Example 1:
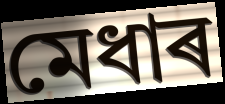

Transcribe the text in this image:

মেধাৰ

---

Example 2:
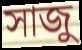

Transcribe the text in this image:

সাজু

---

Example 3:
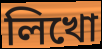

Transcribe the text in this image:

লিখো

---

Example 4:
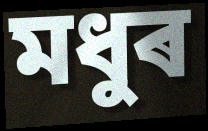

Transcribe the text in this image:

মধুৰ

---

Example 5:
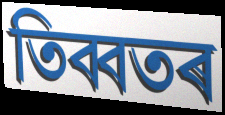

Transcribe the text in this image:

তিব্বতৰ